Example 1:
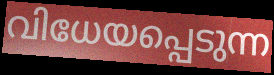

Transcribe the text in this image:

വിധേയപ്പെടുന്ന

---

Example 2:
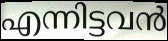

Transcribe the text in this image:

എന്നിട്ടവൻ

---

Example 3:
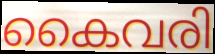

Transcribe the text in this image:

കൈവരി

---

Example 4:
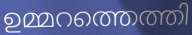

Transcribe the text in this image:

ഉമ്മറത്തെത്തി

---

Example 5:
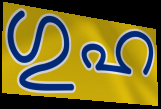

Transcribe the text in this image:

ഗുഹ